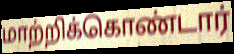
மாற்றிக்கொண்டார்